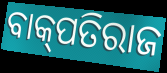
ବାକ୍‌ପତିରାଜ